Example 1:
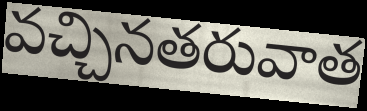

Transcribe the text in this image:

వచ్చినతరువాత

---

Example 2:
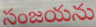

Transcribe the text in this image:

సంజయను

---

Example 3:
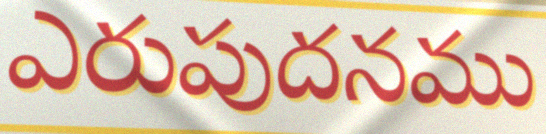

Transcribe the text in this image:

ఎరుపుదనము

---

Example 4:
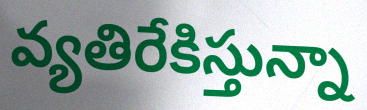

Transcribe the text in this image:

వ్యతిరేకిస్తున్నా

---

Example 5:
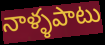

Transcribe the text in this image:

నాళ్ళపాటు